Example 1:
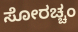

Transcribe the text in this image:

ಸೋರಚ್ಚಂ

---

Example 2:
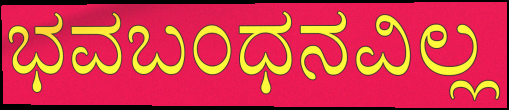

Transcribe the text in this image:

ಭವಬಂಧನವಿಲ್ಲ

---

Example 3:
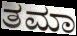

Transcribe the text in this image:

ತಮಾ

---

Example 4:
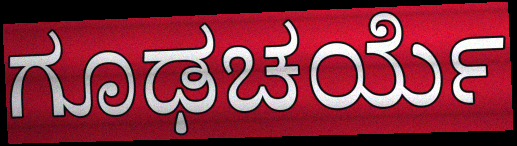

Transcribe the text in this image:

ಗೂಢಚರ್ಯೆ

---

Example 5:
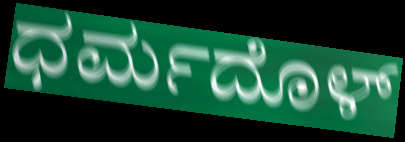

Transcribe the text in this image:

ಧರ್ಮದೊಳ್